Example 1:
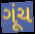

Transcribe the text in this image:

ગૂંચ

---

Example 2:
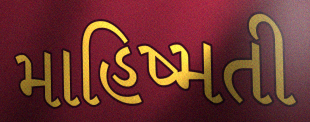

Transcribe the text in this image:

માહિષ્મતી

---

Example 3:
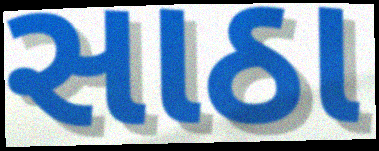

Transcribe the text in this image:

સાઠા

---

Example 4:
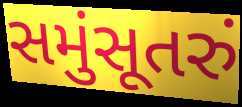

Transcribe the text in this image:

સમુંસૂતરું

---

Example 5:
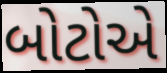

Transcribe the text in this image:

બોટોએ